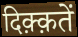
दिक़्क़तें